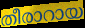
തീരാറായ